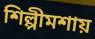
শিল্পীমশায়